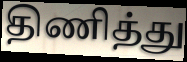
திணித்து